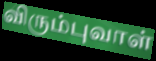
விரும்புவாள்